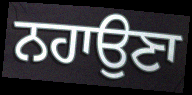
ਨਹਾਉਣਾ